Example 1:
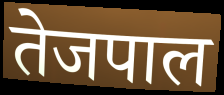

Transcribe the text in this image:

तेजपाल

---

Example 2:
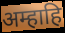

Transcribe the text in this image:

अम्हाहि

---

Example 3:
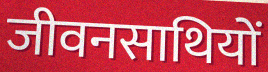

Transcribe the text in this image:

जीवनसाथियों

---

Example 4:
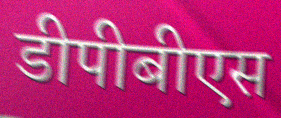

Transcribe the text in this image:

डीपीबीएस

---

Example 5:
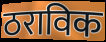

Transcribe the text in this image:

ठराविक